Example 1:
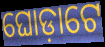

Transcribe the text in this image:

ଘୋଡ଼ାଟେ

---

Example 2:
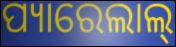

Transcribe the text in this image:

ପ୍ୟାରେଲାଲ୍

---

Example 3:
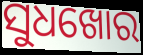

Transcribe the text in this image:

ସୁଧଖୋର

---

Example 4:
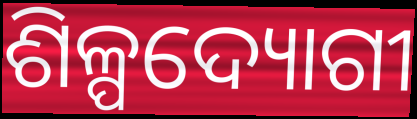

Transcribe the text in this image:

ଶିଳ୍ପଦ୍ୟୋଗୀ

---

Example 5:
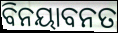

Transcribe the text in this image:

ବିନୟାବନତ